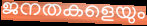
ജനതകളെയും